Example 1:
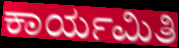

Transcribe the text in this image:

ಕಾರ್ಯಮಿತಿ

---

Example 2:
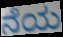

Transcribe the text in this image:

ನೆಯ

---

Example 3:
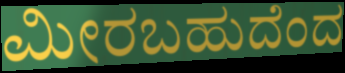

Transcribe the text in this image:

ಮೀರಬಹುದೆಂದ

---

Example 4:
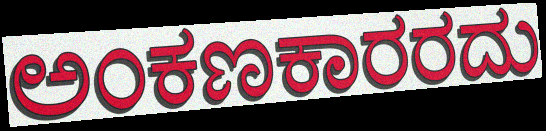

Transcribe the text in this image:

ಅಂಕಣಕಾರರದು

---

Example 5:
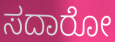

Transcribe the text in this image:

ಸದಾರೋ